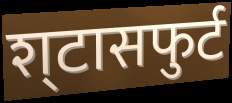
श्टासफुर्ट